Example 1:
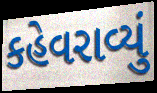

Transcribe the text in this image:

કહેવરાવ્યું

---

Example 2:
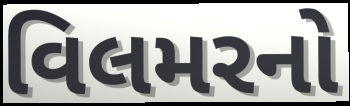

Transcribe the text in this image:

વિલમરનો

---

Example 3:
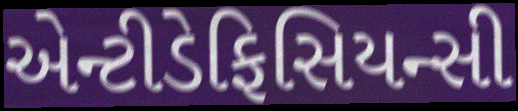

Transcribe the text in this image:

એન્ટીડેફિસિયન્સી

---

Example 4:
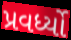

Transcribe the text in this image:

પ્રવર્ધ્યો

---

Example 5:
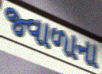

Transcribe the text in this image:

જ્વાળાના